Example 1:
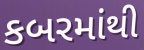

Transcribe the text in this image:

કબરમાંથી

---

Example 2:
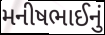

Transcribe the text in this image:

મનીષભાઈનું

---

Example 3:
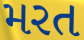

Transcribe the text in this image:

મરત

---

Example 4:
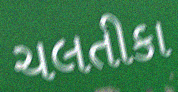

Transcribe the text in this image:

ચલતીકા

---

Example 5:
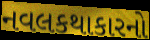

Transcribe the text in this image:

નવલકથાકારનો